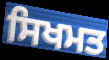
ਸਿਖਮਤ